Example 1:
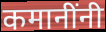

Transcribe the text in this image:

कमानींनी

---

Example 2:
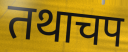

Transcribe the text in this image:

तथाचप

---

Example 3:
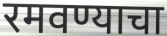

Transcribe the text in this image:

रमवण्याचा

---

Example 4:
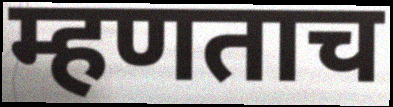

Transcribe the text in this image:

म्हणताच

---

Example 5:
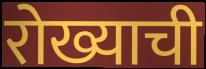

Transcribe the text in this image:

रोख्याची